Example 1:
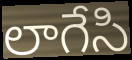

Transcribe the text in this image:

లాగేసి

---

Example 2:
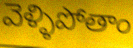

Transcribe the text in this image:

వెళ్ళిపోతాం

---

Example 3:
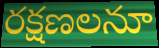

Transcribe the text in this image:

రక్షణలనూ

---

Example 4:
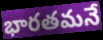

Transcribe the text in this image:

భారతమనే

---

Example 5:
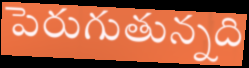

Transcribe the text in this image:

పెరుగుతున్నది